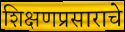
शिक्षणप्रसाराचे